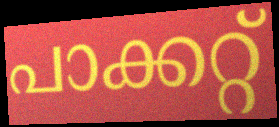
പാക്കറ്റ്